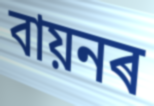
বায়নৰ